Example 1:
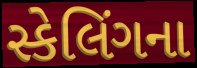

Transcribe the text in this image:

સ્કેલિંગના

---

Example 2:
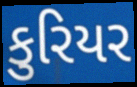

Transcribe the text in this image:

કુરિયર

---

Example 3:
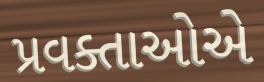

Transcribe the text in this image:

પ્રવક્તાઓએ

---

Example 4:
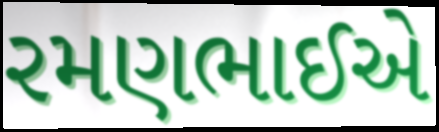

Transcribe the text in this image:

રમણભાઈએ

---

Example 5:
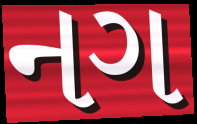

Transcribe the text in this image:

નગ